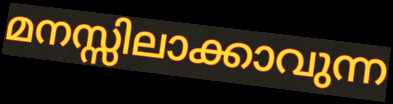
മനസ്സിലാക്കാവുന്ന